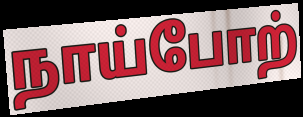
நாய்போற்